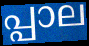
പ്പാല